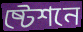
ষ্টেশনে